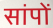
सांपों